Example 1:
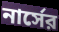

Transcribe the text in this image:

নার্সের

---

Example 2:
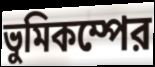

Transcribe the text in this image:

ভুমিকম্পের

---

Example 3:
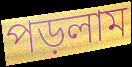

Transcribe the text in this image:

পড়লাম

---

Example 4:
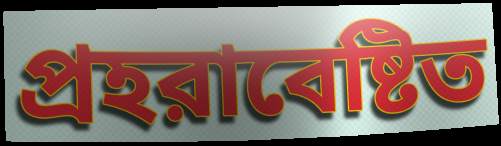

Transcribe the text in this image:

প্রহরাবেষ্টিত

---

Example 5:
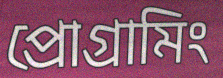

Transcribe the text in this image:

প্রোগ্রামিং